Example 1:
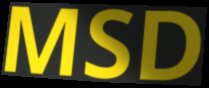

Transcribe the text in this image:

MSD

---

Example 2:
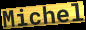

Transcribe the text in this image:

Michel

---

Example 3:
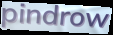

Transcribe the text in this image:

pindrow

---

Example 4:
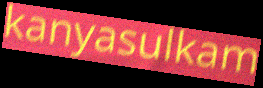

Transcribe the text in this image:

kanyasulkam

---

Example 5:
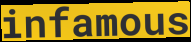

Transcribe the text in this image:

infamous